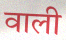
वाली